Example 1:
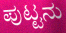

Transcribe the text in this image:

ಪುಟ್ಟನು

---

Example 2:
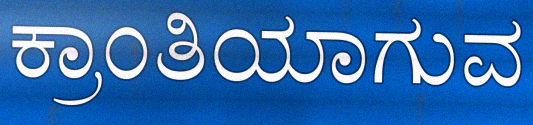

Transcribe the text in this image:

ಕ್ರಾಂತಿಯಾಗುವ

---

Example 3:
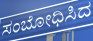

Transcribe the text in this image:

ಸಂಬೋಧಿಸಿದ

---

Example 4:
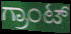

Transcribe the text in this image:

ಗ್ರಾಂಟ್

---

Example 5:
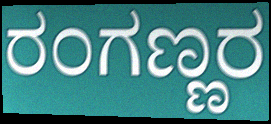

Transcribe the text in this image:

ರಂಗಣ್ಣರ